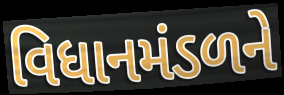
વિધાનમંડળને